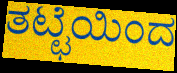
ತಟ್ಟೆಯಿಂದ